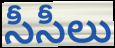
సీసీలు